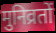
मुनिव्रतों